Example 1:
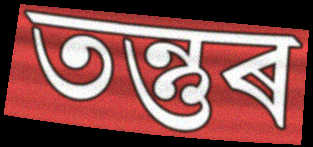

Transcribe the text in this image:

তন্তুৰ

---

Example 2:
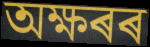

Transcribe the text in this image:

অক্ষৰৰ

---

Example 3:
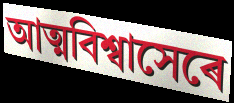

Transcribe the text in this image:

আত্মবিশ্বাসেৰে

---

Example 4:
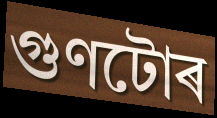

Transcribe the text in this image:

গুণটোৰ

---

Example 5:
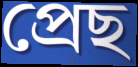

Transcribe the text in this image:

প্ৰেছ